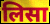
लिसा